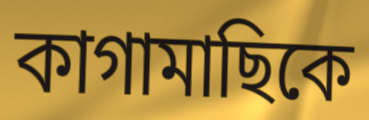
কাগামাছিকে